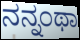
ನನ್ನಂಥಾ